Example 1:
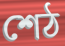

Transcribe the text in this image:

শেঠ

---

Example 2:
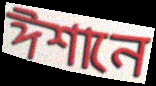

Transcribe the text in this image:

ঈশানে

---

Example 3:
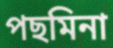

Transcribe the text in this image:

পছমিনা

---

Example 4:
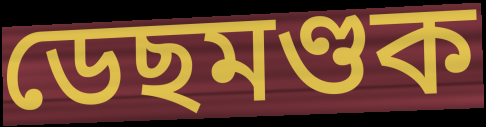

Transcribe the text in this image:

ডেছমণ্ডক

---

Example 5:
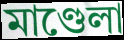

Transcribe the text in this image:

মাণ্ডেলা